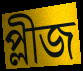
প্লীজ